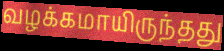
வழக்கமாயிருந்தது